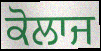
ਕੋਲਾਜ